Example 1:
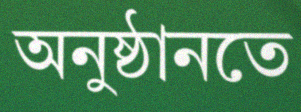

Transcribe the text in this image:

অনুষ্ঠানতে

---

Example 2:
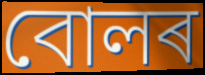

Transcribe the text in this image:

বোলৰ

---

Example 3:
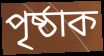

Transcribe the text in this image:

পৃষ্ঠাক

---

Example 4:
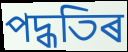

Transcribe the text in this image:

পদ্ধতিৰ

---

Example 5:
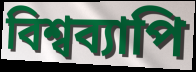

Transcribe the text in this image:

বিশ্বব্যাপি